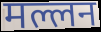
मल्लन